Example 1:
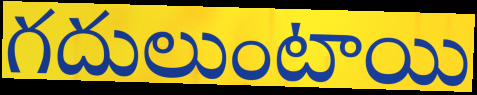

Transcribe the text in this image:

గదులుంటాయి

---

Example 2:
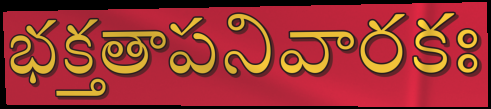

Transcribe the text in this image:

భక్తతాపనివారకః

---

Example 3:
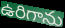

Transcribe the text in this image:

ఉరిగాను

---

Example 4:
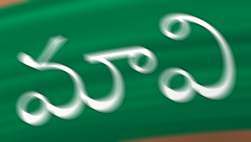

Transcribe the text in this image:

మావి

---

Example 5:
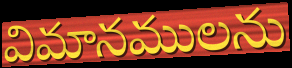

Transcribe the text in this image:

విమానములను